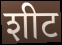
शीट